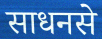
साधनसे